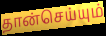
தான்செய்யும்